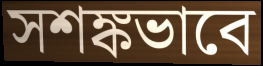
সশঙ্কভাবে